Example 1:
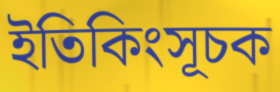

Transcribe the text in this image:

ইতিকিংসূচক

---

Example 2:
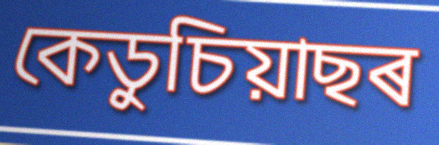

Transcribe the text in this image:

কেডুচিয়াছৰ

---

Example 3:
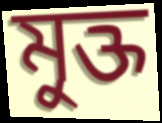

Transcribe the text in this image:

মুক্ত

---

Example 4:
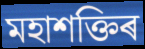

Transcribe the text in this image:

মহাশক্তিৰ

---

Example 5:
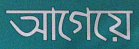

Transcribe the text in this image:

আগেয়ে